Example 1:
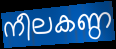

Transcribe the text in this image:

നീലകണ്ഠ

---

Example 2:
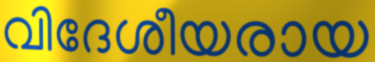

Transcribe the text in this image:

വിദേശീയരായ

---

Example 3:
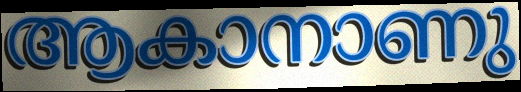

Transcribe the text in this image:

ആകാനാണു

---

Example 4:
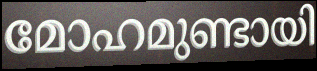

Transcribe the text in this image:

മോഹമുണ്ടായി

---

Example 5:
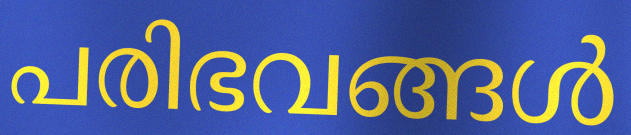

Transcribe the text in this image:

പരിഭവങ്ങൾ